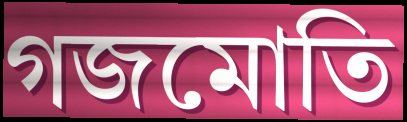
গজমোতি